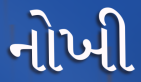
નોખી